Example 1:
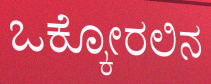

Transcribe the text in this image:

ಒಕ್ಕೋರಲಿನ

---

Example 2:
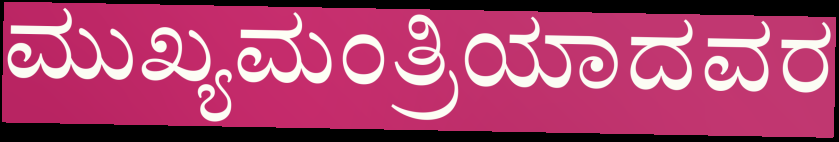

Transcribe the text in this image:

ಮುಖ್ಯಮಂತ್ರಿಯಾದವರ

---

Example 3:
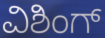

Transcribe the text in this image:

ವಿಶಿಂಗ್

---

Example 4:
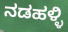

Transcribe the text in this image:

ನಡಹಳ್ಳಿ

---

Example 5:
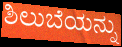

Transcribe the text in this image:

ಶಿಲುಬೆಯನ್ನು